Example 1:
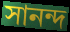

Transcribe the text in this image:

সানন্দ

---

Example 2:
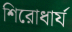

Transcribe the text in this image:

শিরোধার্য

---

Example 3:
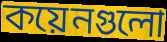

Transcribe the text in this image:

কয়েনগুলো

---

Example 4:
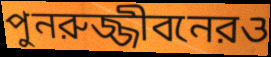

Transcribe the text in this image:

পুনরুজ্জীবনেরও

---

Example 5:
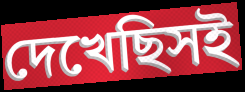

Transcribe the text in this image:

দেখেছিসই